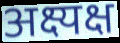
अक्ष्यक्ष